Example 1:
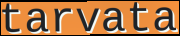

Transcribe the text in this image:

tarvata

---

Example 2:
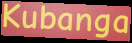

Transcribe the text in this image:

Kubanga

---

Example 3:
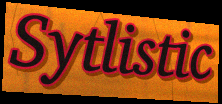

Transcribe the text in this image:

Sytlistic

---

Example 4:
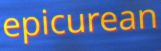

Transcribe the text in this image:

epicurean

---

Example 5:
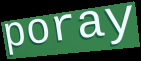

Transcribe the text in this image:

poray